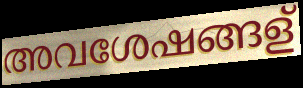
അവശേഷങ്ങള്